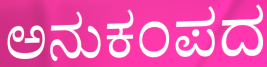
ಅನುಕಂಪದ